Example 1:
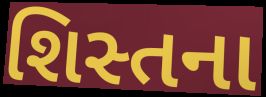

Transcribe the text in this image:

શિસ્તના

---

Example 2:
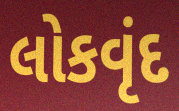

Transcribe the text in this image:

લોકવૃંદ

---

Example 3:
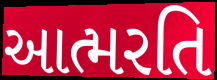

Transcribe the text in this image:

આત્મરતિ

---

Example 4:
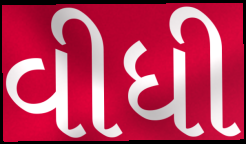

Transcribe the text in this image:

વીધી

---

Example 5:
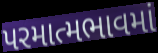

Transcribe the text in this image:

પરમાત્મભાવમાં